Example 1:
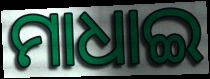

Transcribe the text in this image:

ମାଧାଇ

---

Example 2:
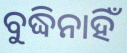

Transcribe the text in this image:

ବୁଦ୍ଧିନାହିଁ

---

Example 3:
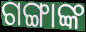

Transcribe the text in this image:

ଗଙ୍ଗାଙ୍କ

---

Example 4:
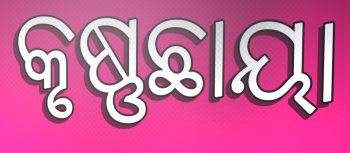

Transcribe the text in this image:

କୃଷ୍ଣଛାୟା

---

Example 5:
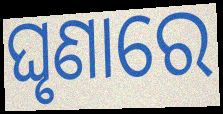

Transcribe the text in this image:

ଘୃଣାରେ